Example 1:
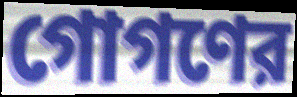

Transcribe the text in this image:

গোগণের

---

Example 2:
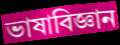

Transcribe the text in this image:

ভাষাবিজ্ঞান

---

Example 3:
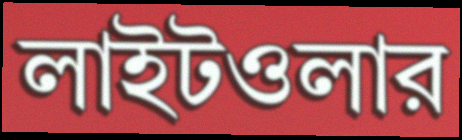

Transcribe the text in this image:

লাইটওলার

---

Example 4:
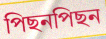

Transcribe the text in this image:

পিছনপিছন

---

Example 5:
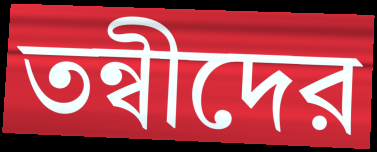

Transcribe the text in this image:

তন্বীদের